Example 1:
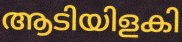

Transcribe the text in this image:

ആടിയിളകി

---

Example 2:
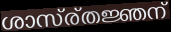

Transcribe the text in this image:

ശാസ്ര്തജ്ഞന്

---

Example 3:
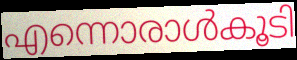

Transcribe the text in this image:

എന്നൊരാൾകൂടി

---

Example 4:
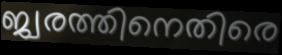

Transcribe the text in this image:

ജ്വരത്തിനെതിരെ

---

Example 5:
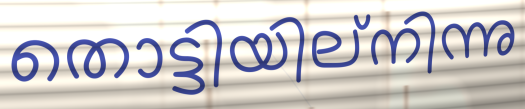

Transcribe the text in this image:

തൊട്ടിയില്നിന്നു